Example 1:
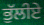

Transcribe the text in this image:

ਭੁੱਲੀਏ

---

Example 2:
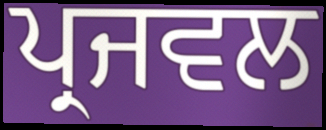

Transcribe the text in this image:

ਪ੍ਰਜਵਲ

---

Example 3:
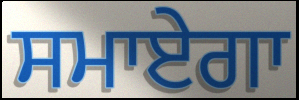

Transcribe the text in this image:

ਸਮਾਏਗਾ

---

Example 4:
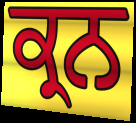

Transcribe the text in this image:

ਕ੍ਰਨ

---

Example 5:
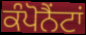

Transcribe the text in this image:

ਕੰਪੋਨੈਂਟਾਂ